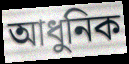
আধুনিক